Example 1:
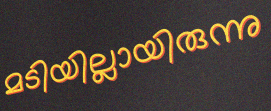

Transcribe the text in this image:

മടിയില്ലായിരുന്നു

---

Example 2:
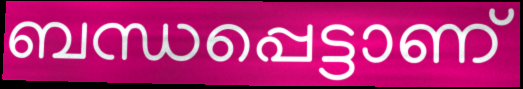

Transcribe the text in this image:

ബന്ധപ്പെട്ടാണ്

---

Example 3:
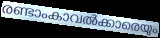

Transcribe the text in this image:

രണ്ടാംകാവൽക്കാരെയും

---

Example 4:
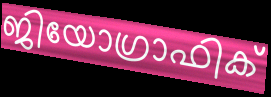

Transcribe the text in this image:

ജിയോഗ്രാഫിക്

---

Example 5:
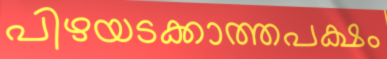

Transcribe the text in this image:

പിഴയടക്കാത്തപക്ഷം